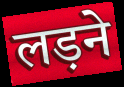
लड़ने